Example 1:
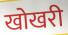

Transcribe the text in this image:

खोखरी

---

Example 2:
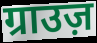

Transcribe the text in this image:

ग्राउज़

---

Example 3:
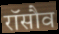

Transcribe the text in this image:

रॉसौव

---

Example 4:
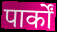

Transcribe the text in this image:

पार्कों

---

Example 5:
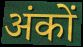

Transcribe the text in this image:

अंकों